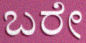
ಬರೇ